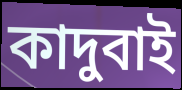
কাদুবাই